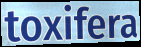
toxifera